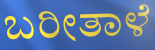
ಬರೀತಾಳೆ